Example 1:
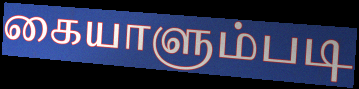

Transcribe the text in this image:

கையாளும்படி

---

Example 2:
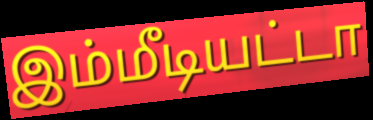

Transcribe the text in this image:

இம்மீடியட்டா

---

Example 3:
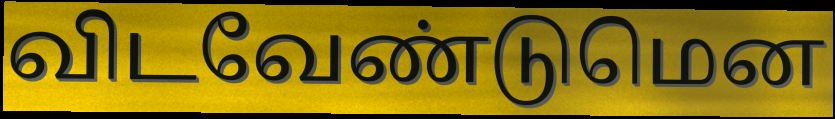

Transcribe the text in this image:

விடவேண்டுமென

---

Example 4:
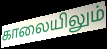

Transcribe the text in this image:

காலையிலும்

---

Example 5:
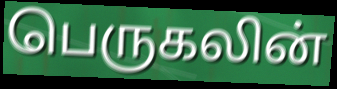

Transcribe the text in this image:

பெருகலின்